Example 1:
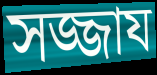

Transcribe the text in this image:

সজ্জায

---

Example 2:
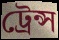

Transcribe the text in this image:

ট্রেন্স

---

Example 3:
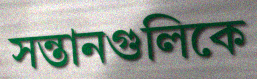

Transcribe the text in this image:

সন্তানগুলিকে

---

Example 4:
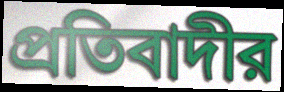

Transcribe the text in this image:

প্রতিবাদীর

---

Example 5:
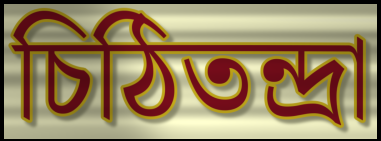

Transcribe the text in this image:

চিঠিতন্দ্রা